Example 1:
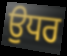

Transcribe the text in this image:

ਉਧਰ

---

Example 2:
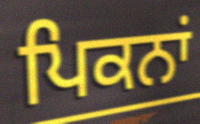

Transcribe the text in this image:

ਪਿਕਨਾਂ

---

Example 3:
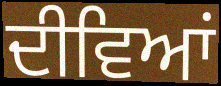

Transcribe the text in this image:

ਦੀਵਿਆਂ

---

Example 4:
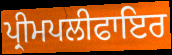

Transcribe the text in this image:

ਪ੍ਰੀਮਪਲੀਫਾਇਰ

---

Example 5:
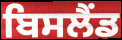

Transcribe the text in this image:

ਬਿਸਲੈਂਡ